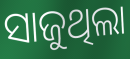
ସାଜୁଥିଲା